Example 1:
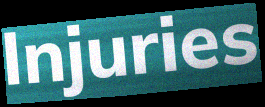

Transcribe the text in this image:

Injuries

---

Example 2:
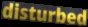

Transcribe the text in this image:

disturbed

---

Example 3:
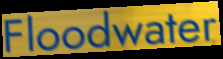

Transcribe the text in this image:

Floodwater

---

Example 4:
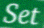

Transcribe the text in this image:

Set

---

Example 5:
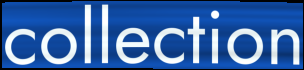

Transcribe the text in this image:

collection